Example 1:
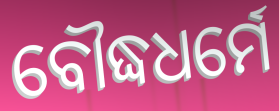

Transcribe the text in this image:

ବୌଦ୍ଧଧର୍ମେ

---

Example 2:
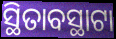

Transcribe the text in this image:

ସ୍ଥିତାବସ୍ଥାଟା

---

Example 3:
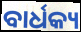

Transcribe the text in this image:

ବାର୍ଧକ୍ୟ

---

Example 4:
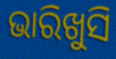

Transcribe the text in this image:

ଭାରିଖୁସି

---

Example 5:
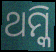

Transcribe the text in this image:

ଥମ୍କି